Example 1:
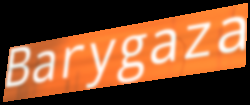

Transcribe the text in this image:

Barygaza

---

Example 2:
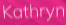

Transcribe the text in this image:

Kathryn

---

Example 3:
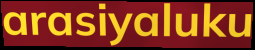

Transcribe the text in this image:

arasiyaluku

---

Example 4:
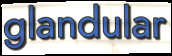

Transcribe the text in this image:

glandular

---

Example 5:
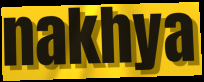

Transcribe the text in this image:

nakhya